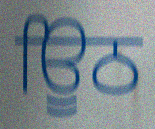
ਊਿਠ